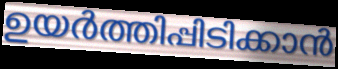
ഉയർത്തിപ്പിടിക്കാൻ